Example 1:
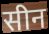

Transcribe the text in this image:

सीन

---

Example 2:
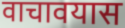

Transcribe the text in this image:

वाचावयास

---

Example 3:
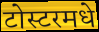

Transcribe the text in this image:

टोस्टरमधे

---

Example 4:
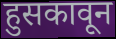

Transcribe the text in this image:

हुसकावून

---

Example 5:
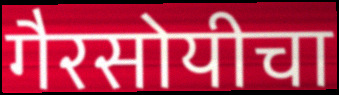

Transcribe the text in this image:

गैरसोयीचा